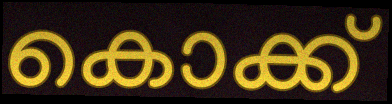
കൊക്ക്